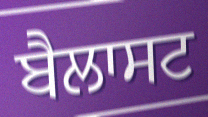
ਬੈਲਾਸਟ